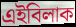
এইবিলাক